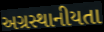
અગ્રસ્થાનીયતા